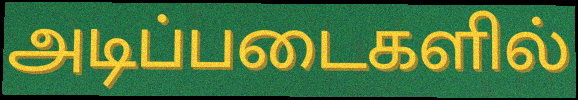
அடிப்படைகளில்